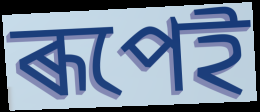
ৰূপেই